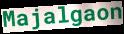
Majalgaon